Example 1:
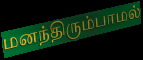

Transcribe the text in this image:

மனந்திரும்பாமல்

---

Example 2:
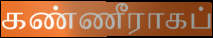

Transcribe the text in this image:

கண்ணீராகப்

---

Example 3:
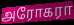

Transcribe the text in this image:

அரோகரா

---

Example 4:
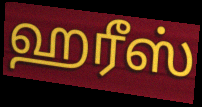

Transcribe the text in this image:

ஹரீஸ்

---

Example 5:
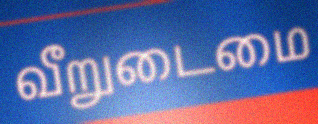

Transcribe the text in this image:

வீறுடைமை